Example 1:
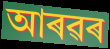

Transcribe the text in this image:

আৰৱৰ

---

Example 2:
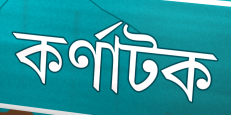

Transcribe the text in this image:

কৰ্ণাটক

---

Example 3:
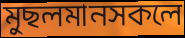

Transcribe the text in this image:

মুছলমানসকলে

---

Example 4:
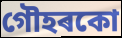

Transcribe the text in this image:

গৌহৰকো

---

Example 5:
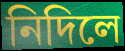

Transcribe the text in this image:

নিদিলে